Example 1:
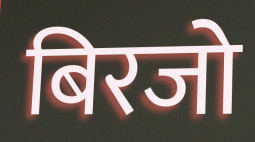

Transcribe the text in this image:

बिरजो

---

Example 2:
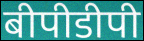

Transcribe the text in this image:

बीपीडीपी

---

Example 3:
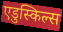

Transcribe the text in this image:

एडुस्किल्स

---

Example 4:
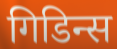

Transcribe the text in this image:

गिडिन्स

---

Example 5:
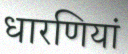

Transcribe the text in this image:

धारणियां